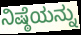
ನಿಷ್ಠೆಯನ್ನು